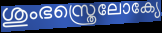
ശുംഭസ്ത്രെലോക്യേ